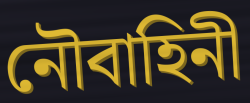
নৌবাহিনী